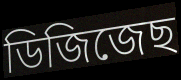
ডিজিজেছ